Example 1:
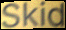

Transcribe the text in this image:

Skid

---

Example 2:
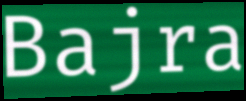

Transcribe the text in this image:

Bajra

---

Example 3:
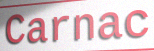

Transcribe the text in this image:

Carnac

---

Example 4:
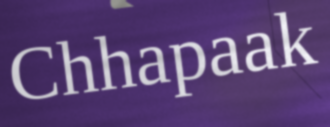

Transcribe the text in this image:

Chhapaak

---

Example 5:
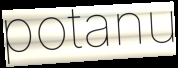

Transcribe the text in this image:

potanu